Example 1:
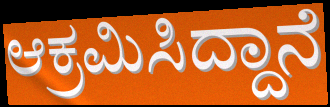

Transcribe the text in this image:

ಆಕ್ರಮಿಸಿದ್ದಾನೆ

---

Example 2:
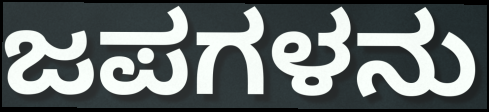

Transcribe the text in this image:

ಜಪಗಳನು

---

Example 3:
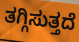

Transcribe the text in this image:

ತಗ್ಗಿಸುತ್ತದೆ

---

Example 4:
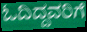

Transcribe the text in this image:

ಓದಿದ್ದವರಿಗೆ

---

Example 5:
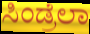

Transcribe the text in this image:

ಸಿಂಡ್ರೆಲಾ